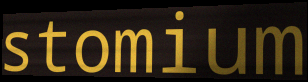
stomium